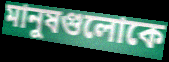
মানুষগুলোকে